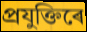
প্ৰযুক্তিৰে